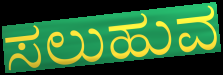
ಸಲುಹುವ